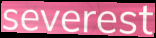
severest